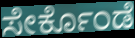
ಸೇರ್ಕೊಂಡೆ